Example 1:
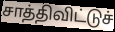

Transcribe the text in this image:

சாத்திவிட்டுச்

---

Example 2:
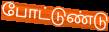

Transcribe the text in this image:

போட்டுண்டு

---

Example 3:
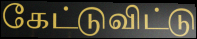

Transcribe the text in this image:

கேட்டுவிட்டு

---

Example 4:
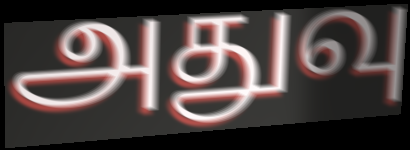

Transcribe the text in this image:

அதுவு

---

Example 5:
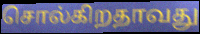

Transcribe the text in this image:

சொல்கிறதாவது